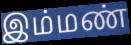
இம்மண்